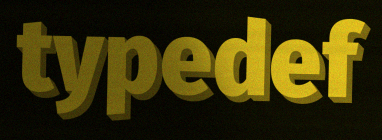
typedef